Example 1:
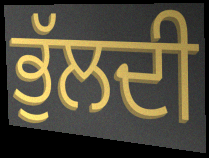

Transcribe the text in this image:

ਭੁੱਲਦੀ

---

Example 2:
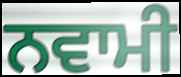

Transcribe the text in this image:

ਨਵਾਮੀ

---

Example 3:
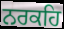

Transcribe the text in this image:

ਨਰਕਹਿ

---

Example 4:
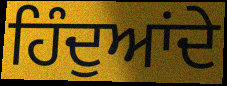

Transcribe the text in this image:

ਹਿੰਦੁਆਂਦੇ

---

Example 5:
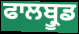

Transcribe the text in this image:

ਫਾਲਬ੍ਰੂਡ